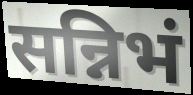
सन्निभं